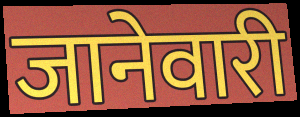
जानेवारी